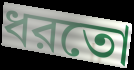
ধরতো